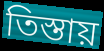
তিস্তায়